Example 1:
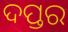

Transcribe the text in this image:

ଦପ୍ତର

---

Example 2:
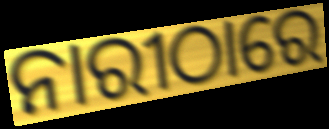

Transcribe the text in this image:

ନାରୀଠାରେ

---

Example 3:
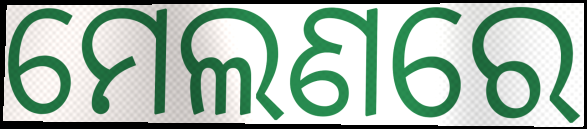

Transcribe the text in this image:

ମେଲଣରେ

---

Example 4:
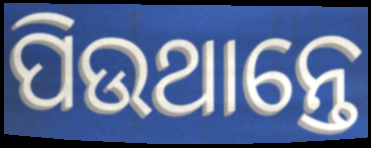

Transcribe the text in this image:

ପିଉଥାନ୍ତେ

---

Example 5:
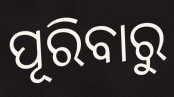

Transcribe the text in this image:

ପୂରିବାରୁ